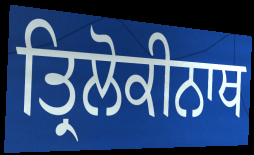
ਤ੍ਰਿਲੋਕੀਨਾਥ